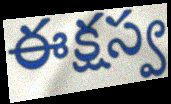
ఈక్షస్వ